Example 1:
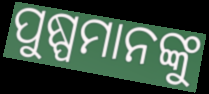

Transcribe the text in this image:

ପୁଷ୍ପମାନଙ୍କୁ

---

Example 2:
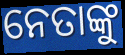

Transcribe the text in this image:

ନେତାଙ୍କୁ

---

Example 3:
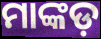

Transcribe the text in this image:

ମାଙ୍କଡ଼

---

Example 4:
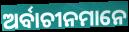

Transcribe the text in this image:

ଅର୍ବାଚୀନମାନେ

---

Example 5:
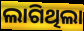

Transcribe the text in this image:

ଲାଗିଥିଲା